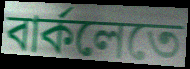
বার্কলেতে